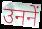
उननें